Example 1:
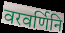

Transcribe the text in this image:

वरवर्णिनि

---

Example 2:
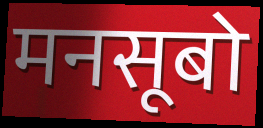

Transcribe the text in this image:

मनसूबो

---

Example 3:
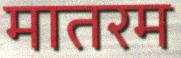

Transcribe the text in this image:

मातरम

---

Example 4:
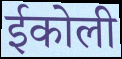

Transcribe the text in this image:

ईकोली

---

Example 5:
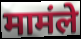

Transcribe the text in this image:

मामंले